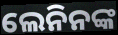
ଲେନିନଙ୍କ